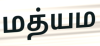
மத்யம